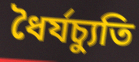
ধৈর্যচ্যুতি